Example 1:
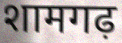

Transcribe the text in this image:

शामगढ़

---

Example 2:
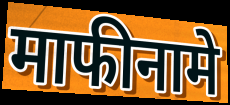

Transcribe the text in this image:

माफीनामे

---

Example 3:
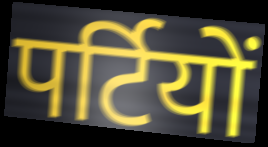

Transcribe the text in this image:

पर्टियों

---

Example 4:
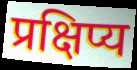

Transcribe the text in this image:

प्रक्षिप्य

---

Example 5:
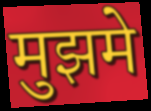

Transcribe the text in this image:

मुझमे